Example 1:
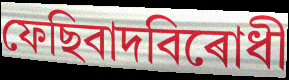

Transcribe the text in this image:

ফেছিবাদবিৰোধী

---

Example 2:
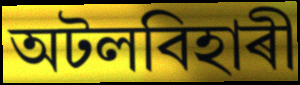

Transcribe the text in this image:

অটলবিহাৰী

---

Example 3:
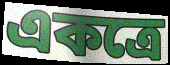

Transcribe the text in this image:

একত্ৰে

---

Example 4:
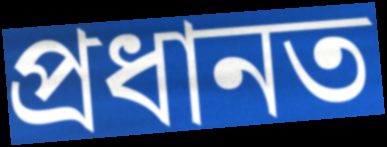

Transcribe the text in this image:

প্ৰধানত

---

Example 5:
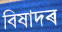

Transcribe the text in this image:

বিষাদৰ